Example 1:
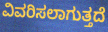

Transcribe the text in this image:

ವಿವರಿಸಲಾಗುತ್ತದೆ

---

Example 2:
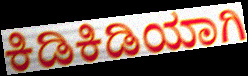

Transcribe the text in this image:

ಕಿಡಿಕಿಡಿಯಾಗಿ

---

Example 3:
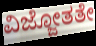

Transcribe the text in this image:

ವಿಜ್ಜೋತತೇ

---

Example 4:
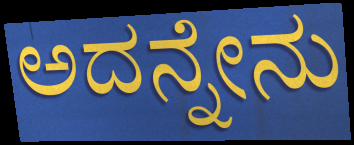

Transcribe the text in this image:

ಅದನ್ನೇನು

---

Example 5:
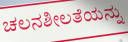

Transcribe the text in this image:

ಚಲನಶೀಲತೆಯನ್ನು